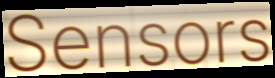
Sensors